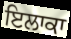
ਇਲਾਕਾ